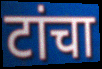
टांचा